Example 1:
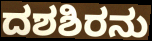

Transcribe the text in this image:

ದಶಶಿರನು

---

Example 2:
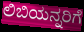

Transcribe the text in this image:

ಲಿಬಿಯನ್ನರಿಗೆ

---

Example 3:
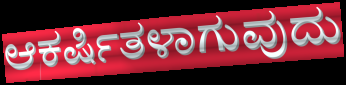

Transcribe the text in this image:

ಆಕರ್ಷಿತಳಾಗುವುದು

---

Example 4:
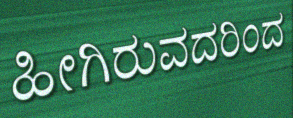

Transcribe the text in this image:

ಹೀಗಿರುವದರಿಂದ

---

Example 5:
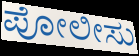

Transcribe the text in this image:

ಪೋಲೀಸು